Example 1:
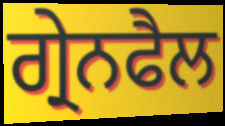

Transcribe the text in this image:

ਗ੍ਰੇਨਫੈਲ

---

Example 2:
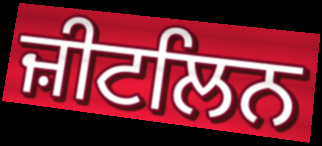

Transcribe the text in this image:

ਜ਼ੀਟਲਿਨ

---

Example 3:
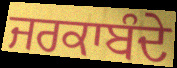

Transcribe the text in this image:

ਜਰਕਾਬੰਦੇ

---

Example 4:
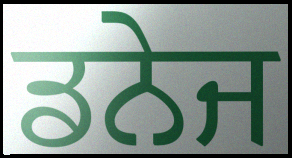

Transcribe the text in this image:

ਡਨੇਜ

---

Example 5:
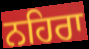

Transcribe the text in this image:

ਨਹਿਰਾ